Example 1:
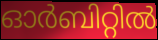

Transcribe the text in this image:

ഓർബിറ്റിൽ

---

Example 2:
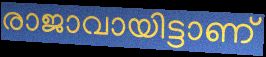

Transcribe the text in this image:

രാജാവായിട്ടാണ്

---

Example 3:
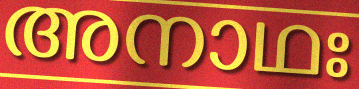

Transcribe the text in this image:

അനാഥഃ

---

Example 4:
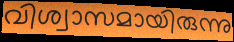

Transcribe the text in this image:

വിശ്വാസമായിരുന്നു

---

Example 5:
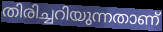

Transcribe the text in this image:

തിരിച്ചറിയുന്നതാണ്